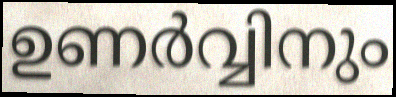
ഉണർവ്വിനും